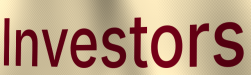
Investors